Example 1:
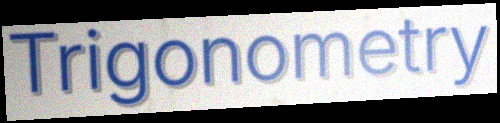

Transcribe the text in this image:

Trigonometry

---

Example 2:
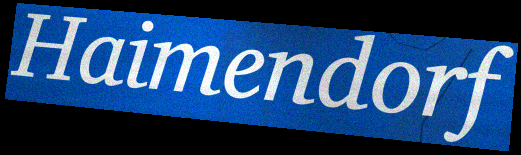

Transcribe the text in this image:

Haimendorf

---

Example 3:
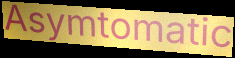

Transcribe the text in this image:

Asymtomatic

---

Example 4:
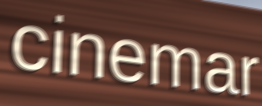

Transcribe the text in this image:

cinemar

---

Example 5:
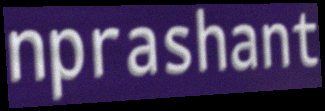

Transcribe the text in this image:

nprashant